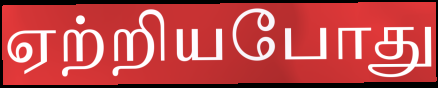
ஏற்றியபோது